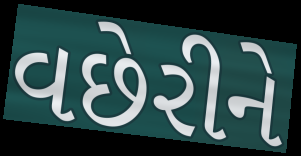
વછેરીને